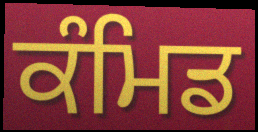
ਕੰਮਿਡ